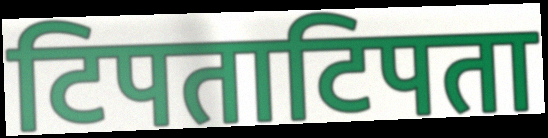
टिपताटिपता